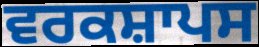
ਵਰਕਸ਼ਾਪਸ